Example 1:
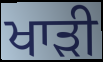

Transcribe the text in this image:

ਖਾੜੀ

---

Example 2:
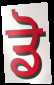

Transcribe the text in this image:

ਡੋ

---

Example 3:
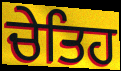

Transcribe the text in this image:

ਚੇਤਿਹ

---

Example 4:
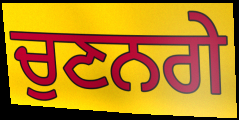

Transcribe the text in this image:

ਚੁਣਨਗੇ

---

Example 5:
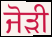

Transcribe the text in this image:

ਜੋੜੀ